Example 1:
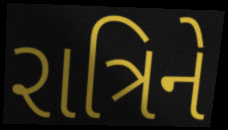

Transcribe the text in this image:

રાત્રિને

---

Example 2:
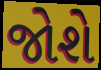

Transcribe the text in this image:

જોશે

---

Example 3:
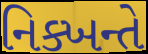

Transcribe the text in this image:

નિક્ખન્તે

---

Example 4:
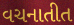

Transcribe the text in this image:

વચનાતીત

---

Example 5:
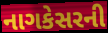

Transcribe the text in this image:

નાગકેસરની